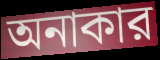
অনাকার